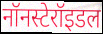
नॉनस्टेरॉइडल